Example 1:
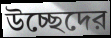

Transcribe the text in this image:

উচ্ছেদের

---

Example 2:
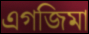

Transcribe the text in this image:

এগজিমা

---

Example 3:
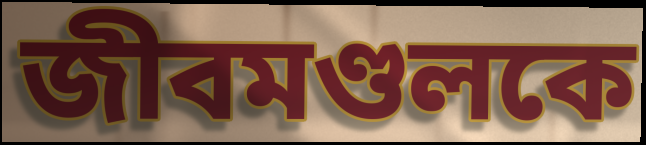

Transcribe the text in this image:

জীবমণ্ডলকে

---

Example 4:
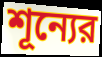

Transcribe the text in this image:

শূন্যের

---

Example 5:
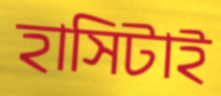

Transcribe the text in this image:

হাসিটাই